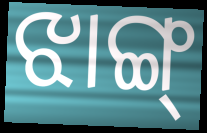
ଝାଙ୍ଗ୍